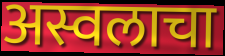
अस्वलाचा